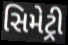
સિમેટ્રી